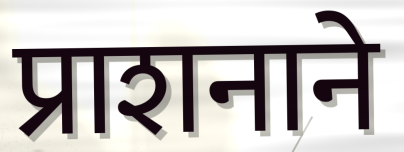
प्राशनाने